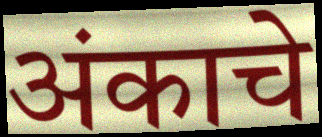
अंकाचे